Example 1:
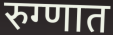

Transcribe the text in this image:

रुग्णात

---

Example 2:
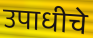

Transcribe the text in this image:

उपाधीचे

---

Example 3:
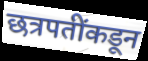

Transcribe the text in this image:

छत्रपतींकडून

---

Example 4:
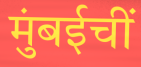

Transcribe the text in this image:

मुंबईचीं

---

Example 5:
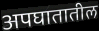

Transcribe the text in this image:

अपघातातील